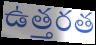
ఉత్తరత